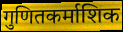
गुणितकर्माशिक